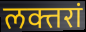
लक्तरां